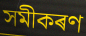
সমীকৰণ